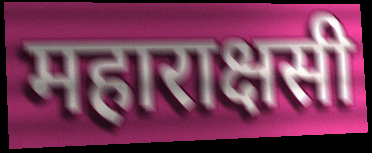
महाराक्षसी